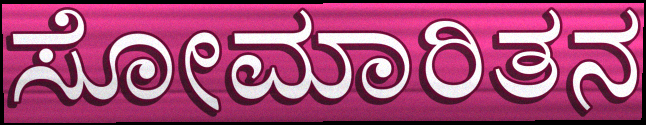
ಸೋಮಾರಿತನ